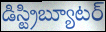
డిస్ట్రిబ్యూటర్